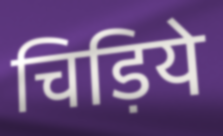
चिड़िये